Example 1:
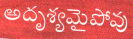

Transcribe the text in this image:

అదృశ్యమైపోవు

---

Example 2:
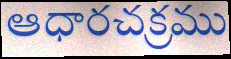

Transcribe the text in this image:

ఆధారచక్రము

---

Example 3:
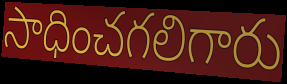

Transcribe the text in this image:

సాధించగలిగారు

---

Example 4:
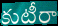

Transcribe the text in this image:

కుటీరా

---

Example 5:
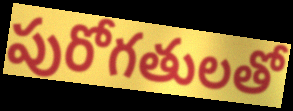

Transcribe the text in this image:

పురోగతులతో